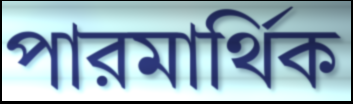
পারমার্থিক